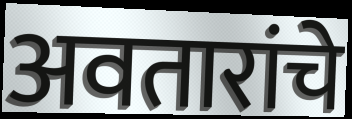
अवतारांचे